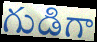
గుడిగా